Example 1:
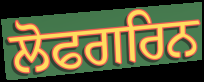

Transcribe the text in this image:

ਲੋਫਗਰਿਨ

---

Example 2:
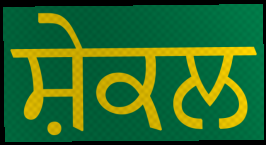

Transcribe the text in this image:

ਸ਼ੇਕਲ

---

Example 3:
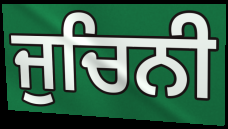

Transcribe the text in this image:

ਜੁਚਿਨੀ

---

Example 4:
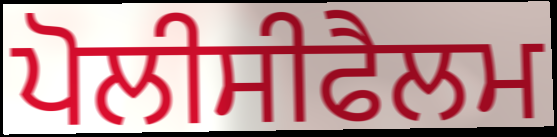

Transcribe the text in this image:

ਪੋਲੀਸੀਫੈਲਮ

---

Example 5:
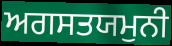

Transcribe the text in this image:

ਅਗਸਤਯਮੁਨੀ